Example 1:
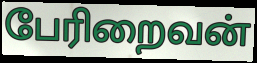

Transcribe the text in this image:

பேரிறைவன்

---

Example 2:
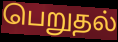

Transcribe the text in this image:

பெறுதல்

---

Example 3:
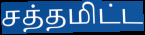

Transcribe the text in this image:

சத்தமிட்ட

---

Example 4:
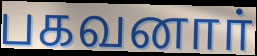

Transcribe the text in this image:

பகவனார்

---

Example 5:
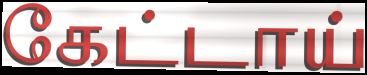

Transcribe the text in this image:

கேட்டாய்